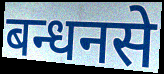
बन्धनसे